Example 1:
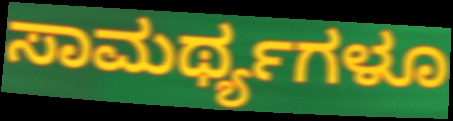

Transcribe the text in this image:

ಸಾಮರ್ಥ್ಯಗಳೂ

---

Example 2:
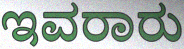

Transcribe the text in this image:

ಇವರಾರು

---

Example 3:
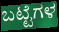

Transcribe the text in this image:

ಬಟ್ಟೆಗಳ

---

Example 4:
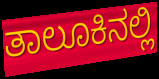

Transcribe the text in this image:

ತಾಲೂಕಿನಲ್ಲಿ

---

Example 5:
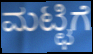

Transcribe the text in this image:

ಮಟ್ಟಿಗೆ